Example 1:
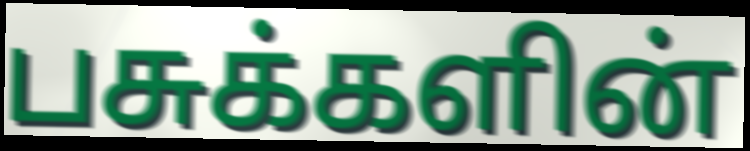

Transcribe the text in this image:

பசுக்களின்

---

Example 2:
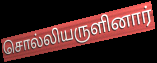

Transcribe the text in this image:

சொல்லியருளினார்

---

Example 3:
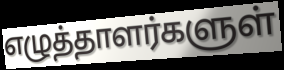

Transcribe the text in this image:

எழுத்தாளர்களுள்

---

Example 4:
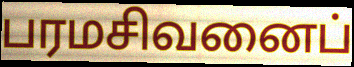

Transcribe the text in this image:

பரமசிவனைப்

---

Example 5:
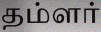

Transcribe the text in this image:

தம்ளர்